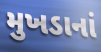
મુખડાનાં